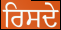
ਰਿਸਦੇ